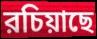
রচিয়াছে